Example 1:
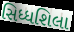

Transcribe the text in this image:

સિધ્ધશિલા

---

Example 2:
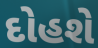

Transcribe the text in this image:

દોહશે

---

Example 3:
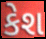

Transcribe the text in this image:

કેશ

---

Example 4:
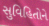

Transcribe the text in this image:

સુવિહિતોને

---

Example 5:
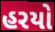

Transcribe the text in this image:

હરયો